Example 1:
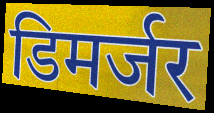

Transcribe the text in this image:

डिमर्जर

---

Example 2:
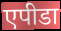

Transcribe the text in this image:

एपीडा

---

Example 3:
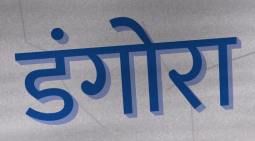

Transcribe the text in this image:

डंगोरा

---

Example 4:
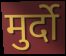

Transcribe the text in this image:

मुर्दो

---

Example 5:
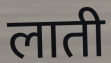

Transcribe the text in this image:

लाती